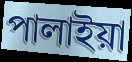
পালাইয়া